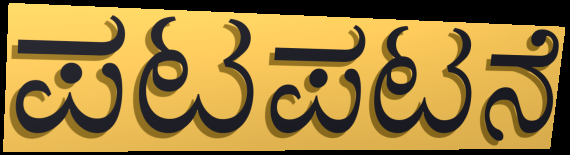
ಪಟಪಟನೆ